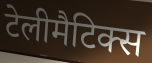
टेलीमैटिक्स